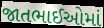
જાતભાઈઓમાં